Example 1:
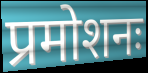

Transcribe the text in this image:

प्रमोशनः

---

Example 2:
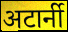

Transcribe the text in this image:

अटार्नी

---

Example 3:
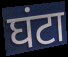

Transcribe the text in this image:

घंटा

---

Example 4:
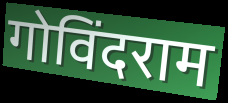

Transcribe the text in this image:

गोविंदराम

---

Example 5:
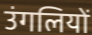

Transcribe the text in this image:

उंगलियों